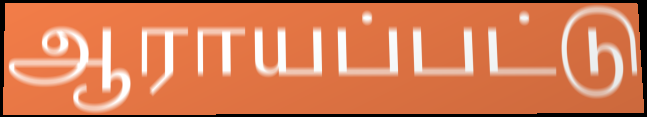
ஆராயப்பட்டு